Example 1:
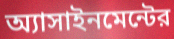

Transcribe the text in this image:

অ্যাসাইনমেন্টের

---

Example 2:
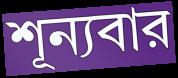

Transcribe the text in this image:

শূন্যবার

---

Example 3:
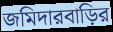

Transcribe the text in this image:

জমিদারবাড়ির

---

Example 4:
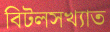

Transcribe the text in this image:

বিটলসখ্যাত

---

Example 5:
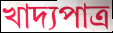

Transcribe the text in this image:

খাদ্যপাত্র